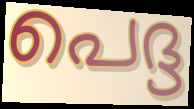
പെദ്ദ